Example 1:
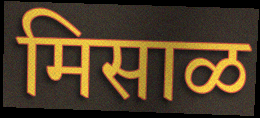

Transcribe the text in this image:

मिसाळ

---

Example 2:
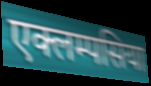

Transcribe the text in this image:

एक्लम्पसिया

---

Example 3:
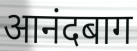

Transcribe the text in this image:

आनंदबाग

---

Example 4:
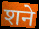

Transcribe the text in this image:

शने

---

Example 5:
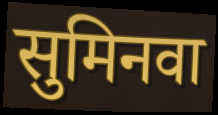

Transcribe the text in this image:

सुमिनवा